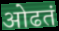
ओढतं